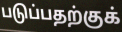
படுப்பதற்குக்